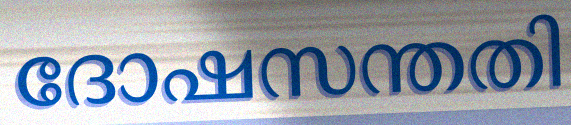
ദോഷസന്തതി